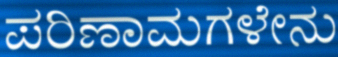
ಪರಿಣಾಮಗಳೇನು